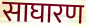
साघारण